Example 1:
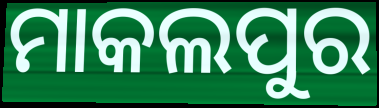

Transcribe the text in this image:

ମାକଲପୁର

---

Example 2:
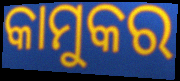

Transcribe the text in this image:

କାମୁକର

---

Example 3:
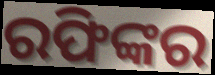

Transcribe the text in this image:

ରଫିଙ୍କର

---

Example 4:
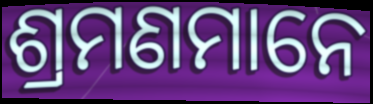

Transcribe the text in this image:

ଶ୍ରମଣମାନେ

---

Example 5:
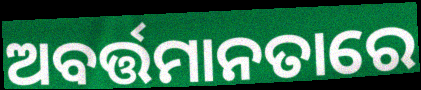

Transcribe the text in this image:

ଅବର୍ତ୍ତମାନତାରେ